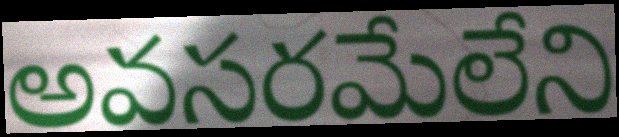
అవసరమేలేని